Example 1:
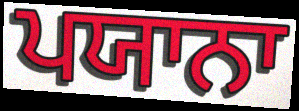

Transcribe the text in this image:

ਪਯਾਨਾ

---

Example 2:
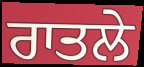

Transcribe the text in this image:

ਰਾਤਲੇ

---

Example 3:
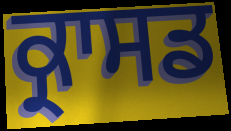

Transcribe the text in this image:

ਕ੍ਰਾਸਡ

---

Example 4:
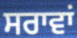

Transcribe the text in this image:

ਸਰਾਵਾਂ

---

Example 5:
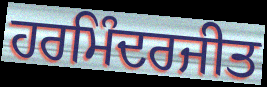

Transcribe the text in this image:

ਹਰਮਿੰਦਰਜੀਤ